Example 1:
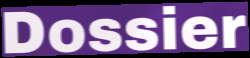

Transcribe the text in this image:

Dossier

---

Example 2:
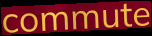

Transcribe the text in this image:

commute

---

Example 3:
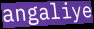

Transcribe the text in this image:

angaliye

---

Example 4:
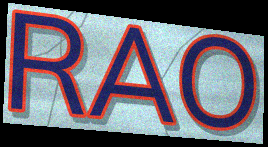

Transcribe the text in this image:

RAO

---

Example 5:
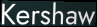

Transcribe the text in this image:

Kershaw